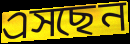
এসছেন